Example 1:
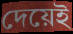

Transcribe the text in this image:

দেয়েই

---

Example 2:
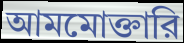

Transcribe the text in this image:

আমমোক্তারি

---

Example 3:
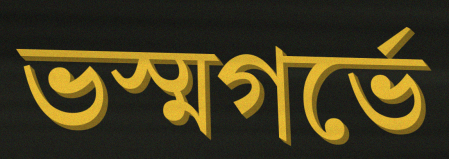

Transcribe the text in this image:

ভস্মগর্ভে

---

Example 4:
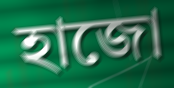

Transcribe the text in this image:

হাজো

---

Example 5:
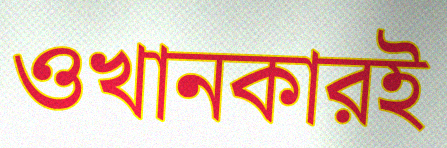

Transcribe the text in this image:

ওখানকারই